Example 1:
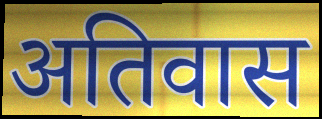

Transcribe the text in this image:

अतिवास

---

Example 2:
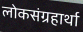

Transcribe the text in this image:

लोकसंग्रहार्था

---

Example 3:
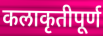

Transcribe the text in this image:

कलाकृतीपूर्ण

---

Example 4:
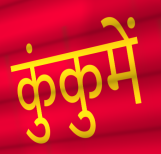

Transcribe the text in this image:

कुंकुमें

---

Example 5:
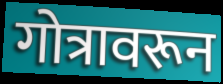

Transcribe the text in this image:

गोत्रावरून